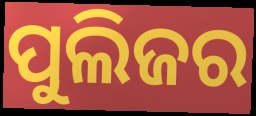
ପୁଲିଜର